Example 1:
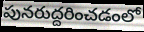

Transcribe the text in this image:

పునరుద్దరించడంలో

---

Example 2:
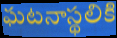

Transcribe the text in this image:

ఘటనాస్థలికి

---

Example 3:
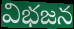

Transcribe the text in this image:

విభజన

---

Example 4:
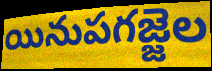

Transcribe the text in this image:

యినుపగజ్జెల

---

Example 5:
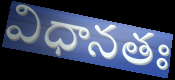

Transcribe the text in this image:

విధానతః